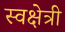
स्वक्षेत्री